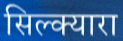
सिल्क्यारा